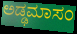
ಅಡ್ಢಮಾಸಂ